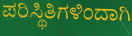
ಪರಿಸ್ಥಿತಿಗಳಿಂದಾಗಿ